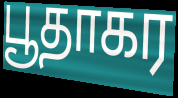
பூதாகர